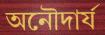
অনৌদার্য